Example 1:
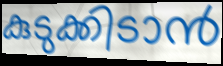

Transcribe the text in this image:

കുടുക്കിടാൻ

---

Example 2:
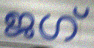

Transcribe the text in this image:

ജഗ്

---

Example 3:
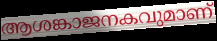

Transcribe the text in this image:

ആശങ്കാജനകവുമാണ്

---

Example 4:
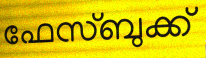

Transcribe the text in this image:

ഫേസ്ബുക്ക്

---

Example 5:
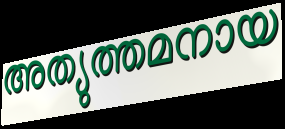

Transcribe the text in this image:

അത്യുത്തമനായ